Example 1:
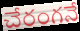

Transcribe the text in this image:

చేరంగనే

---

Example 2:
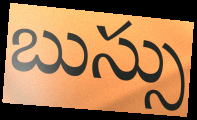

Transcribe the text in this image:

బుస్సు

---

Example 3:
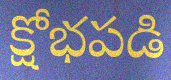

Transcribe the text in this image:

క్షోభపడి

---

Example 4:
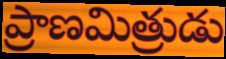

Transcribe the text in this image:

ప్రాణమిత్రుడు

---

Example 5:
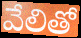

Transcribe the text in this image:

వేలితో